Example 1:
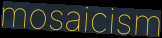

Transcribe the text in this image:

mosaicism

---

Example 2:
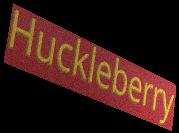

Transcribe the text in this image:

Huckleberry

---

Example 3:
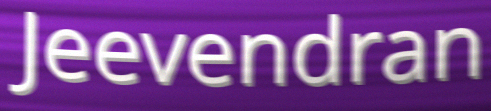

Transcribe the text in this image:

Jeevendran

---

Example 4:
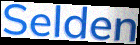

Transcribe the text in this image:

Selden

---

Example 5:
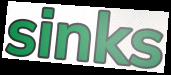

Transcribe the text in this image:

sinks